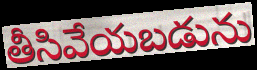
తీసివేయబడును